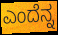
ಎಂದೆನ್ನ